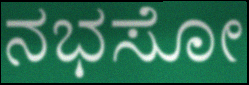
ನಭಸೋ